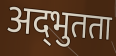
अद्‌भुतता